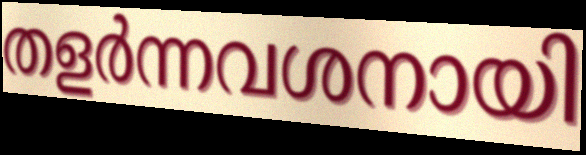
തളർന്നവശനായി